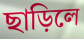
ছাড়িলে